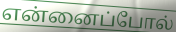
என்னைப்போல்